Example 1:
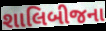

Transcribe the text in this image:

શાલિબીજના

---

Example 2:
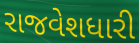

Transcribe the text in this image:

રાજવેશધારી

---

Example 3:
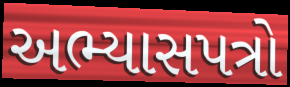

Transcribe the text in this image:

અભ્યાસપત્રો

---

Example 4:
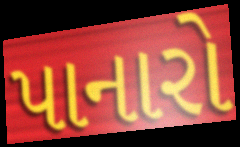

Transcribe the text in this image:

પાનારો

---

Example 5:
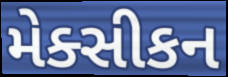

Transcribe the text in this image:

મેક્સીકન